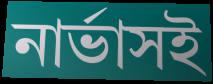
নার্ভাসই